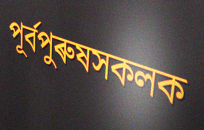
পূৰ্বপুৰুষসকলক